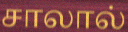
சாலால்